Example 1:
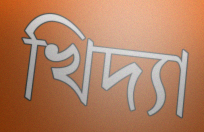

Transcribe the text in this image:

খিদ্যা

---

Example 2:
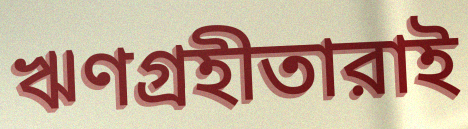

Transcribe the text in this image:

ঋণগ্রহীতারাই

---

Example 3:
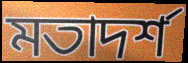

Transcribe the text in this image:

মতাদর্শ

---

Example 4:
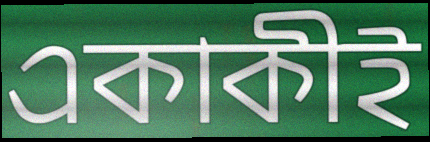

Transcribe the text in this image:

একাকীই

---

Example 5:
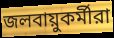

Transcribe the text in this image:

জলবায়ুকর্মীরা